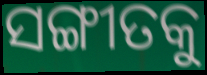
ସଙ୍ଗୀତକୁ